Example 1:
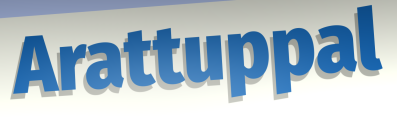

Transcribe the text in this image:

Arattuppal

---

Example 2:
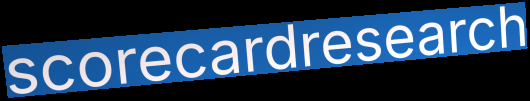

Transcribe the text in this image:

scorecardresearch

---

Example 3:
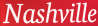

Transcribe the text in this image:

Nashville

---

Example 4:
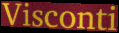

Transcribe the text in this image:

Visconti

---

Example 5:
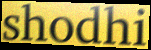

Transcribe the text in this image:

shodhi